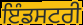
ਇੰਡਸਟਰੀ